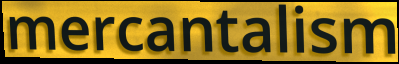
mercantalism